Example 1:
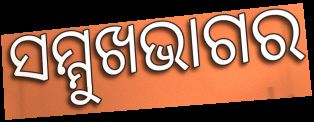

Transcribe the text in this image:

ସମ୍ମୁଖଭାଗର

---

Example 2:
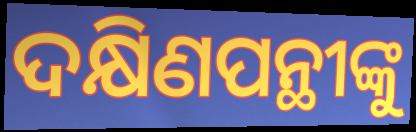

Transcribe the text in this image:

ଦକ୍ଷିଣପନ୍ଥୀଙ୍କୁ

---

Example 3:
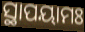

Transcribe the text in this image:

ସ୍ଥାପୟାମଃ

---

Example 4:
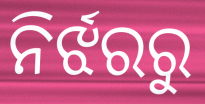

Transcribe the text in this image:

ନିର୍ଝରରୁ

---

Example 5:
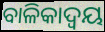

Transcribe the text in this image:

ବାଳିକାଦ୍ୱୟ